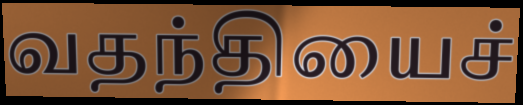
வதந்தியைச்